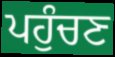
ਪਹੁੰਚਣ